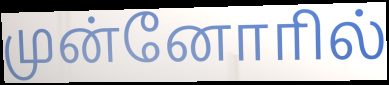
முன்னோரில்